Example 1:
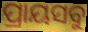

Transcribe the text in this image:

ପ୍ରାୟସବୁ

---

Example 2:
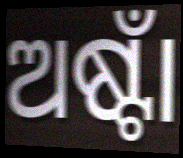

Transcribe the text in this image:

ଅଷ୍ଟାଁ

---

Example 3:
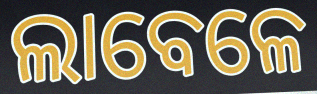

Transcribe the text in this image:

ଲାବେଳେ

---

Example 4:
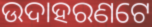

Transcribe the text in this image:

ଉଦାହରଣଟେ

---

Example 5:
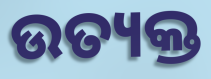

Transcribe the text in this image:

ଉତ୍ୟକ୍ତ